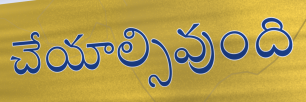
చేయాల్సివుంది